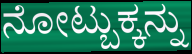
ನೋಟ್ಬುಕ್ಕನ್ನು